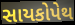
સાયકોપેથ